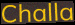
Challa